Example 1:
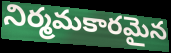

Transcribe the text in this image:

నిర్మమకారమైన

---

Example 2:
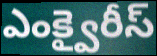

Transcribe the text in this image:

ఎంక్వైరీస్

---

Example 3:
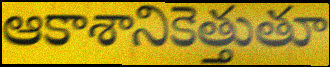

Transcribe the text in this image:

ఆకాశానికెత్తుతూ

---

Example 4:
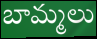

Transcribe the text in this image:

బామ్మలు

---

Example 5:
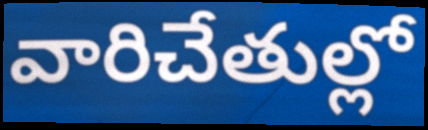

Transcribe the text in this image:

వారిచేతుల్లో